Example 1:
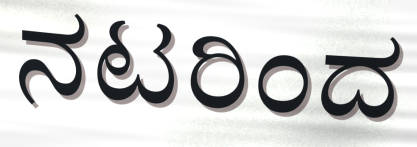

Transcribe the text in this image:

ನಟರಿಂದ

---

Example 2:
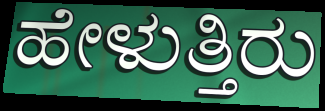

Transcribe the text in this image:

ಹೇಳುತ್ತಿರು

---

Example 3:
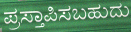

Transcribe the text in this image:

ಪ್ರಸ್ತಾಪಿಸಬಹುದು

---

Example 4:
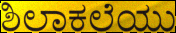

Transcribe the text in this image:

ಶಿಲಾಕಲೆಯು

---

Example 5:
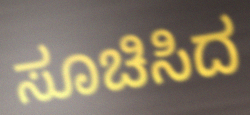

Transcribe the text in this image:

ಸೂಚಿಸಿದ